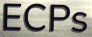
ECPs